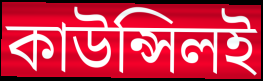
কাউন্সিলই